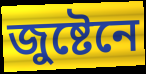
জুষ্টেনে